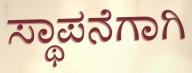
ಸ್ಥಾಪನೆಗಾಗಿ